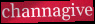
channagive